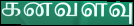
கனவளவு